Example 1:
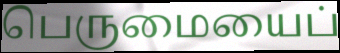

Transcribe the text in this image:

பெருமையைப்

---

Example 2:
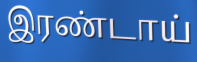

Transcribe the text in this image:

இரண்டாய்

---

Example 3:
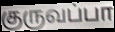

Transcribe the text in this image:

குருவப்பா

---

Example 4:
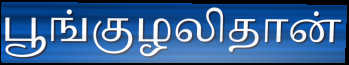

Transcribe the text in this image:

பூங்குழலிதான்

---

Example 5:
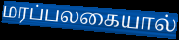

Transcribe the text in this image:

மரப்பலகையால்